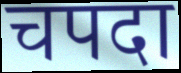
चपदा